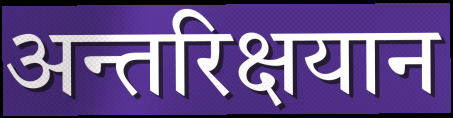
अन्तरिक्षयान